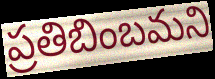
ప్రతిబింబమని